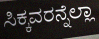
ಸಿಕ್ಕವರನ್ನೆಲ್ಲಾ